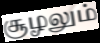
சூழலும்